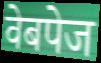
वेबपेज